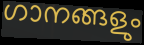
ഗാനങ്ങളും